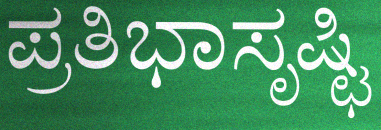
ಪ್ರತಿಭಾಸೃಷ್ಟಿ